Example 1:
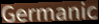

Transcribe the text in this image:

Germanic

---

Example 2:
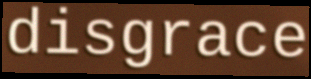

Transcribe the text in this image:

disgrace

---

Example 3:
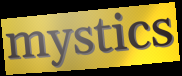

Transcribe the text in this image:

mystics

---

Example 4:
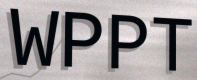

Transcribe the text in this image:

WPPT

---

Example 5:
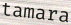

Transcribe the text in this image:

tamara